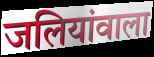
जलियांवाला